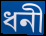
ধনী